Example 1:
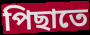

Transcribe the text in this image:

পিছাতে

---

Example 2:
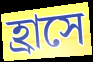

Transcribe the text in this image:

হ্রাসে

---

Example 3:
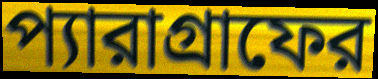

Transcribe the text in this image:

প্যারাগ্রাফের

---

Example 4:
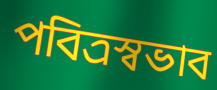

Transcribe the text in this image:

পবিত্রস্বভাব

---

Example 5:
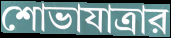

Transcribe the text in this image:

শোভাযাত্রার